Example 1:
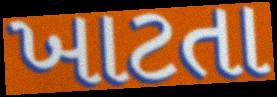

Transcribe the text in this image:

ખાટતા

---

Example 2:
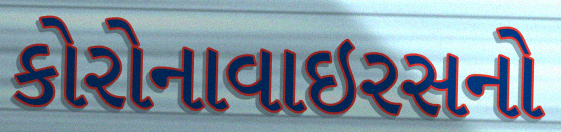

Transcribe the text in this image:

કોરોનાવાઇરસનો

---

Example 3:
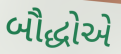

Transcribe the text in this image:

બૌદ્ધોએ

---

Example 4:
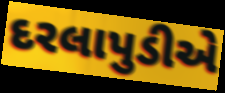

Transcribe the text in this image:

દરલાપુડીએ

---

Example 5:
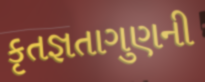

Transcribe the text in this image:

કૃતજ્ઞતાગુણની